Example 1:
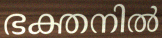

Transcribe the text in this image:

ഭക്തനിൽ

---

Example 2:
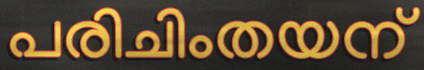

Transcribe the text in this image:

പരിചിംതയന്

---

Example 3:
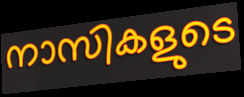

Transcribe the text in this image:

നാസികളുടെ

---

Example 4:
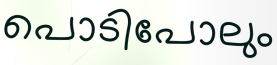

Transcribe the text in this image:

പൊടിപോലും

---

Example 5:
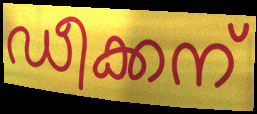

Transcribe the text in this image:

ഡീക്കന്